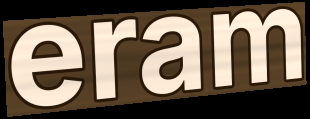
eram